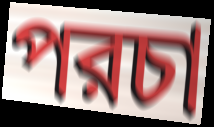
পরচা